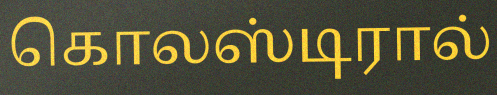
கொலஸ்டிரால்